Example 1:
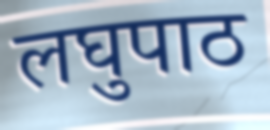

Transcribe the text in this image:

लघुपाठ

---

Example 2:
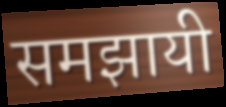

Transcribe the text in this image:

समझायी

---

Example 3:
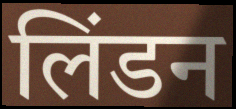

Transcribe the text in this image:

लिंडन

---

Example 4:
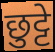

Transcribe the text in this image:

छुट्टे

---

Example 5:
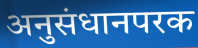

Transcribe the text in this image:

अनुसंधानपरक